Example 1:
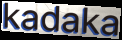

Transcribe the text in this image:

kadaka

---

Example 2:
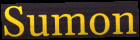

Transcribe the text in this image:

Sumon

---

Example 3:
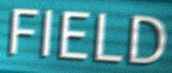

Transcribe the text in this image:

FIELD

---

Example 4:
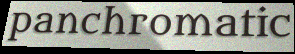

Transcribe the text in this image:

panchromatic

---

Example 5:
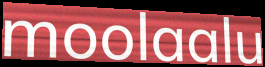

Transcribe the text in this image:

moolaalu